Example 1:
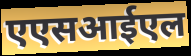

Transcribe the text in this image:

एएसआईएल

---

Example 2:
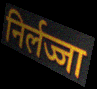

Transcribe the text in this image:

निर्लज्जा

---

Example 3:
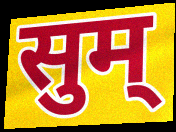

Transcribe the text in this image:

सुम्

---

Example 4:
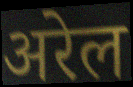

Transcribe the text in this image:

अरेल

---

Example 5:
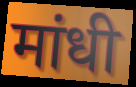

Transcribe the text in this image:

मांधी